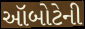
ઑબોટેની